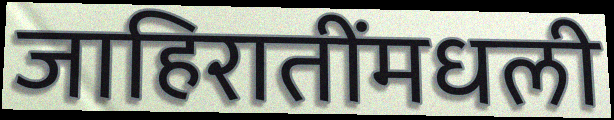
जाहिरातींमधली